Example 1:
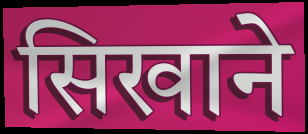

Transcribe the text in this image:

सिखाने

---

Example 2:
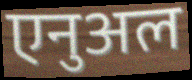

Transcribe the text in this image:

एनुअल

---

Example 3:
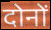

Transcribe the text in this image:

दोनों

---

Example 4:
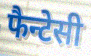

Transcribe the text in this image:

फैन्टेसी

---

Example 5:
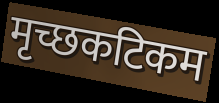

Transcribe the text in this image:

मृच्छकटिकम